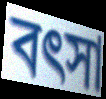
বৎসা